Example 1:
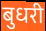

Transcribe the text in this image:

बुधरी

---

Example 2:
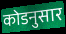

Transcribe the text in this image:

कोडनुसार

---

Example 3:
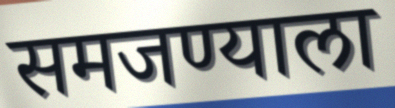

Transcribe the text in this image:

समजण्याला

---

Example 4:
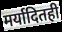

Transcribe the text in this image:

मर्यादितही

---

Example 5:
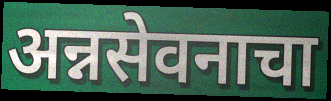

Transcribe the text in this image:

अन्नसेवनाचा